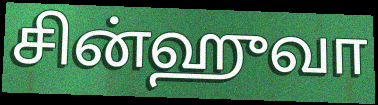
சின்ஹுவா